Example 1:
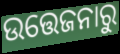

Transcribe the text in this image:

ଉତ୍ତେଜନାରୁ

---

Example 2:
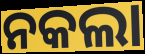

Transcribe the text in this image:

ନକଲା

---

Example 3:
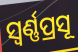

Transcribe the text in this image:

ସ୍ୱର୍ଣ୍ଣପ୍ରସୂ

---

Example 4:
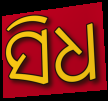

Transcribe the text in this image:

ସିଧ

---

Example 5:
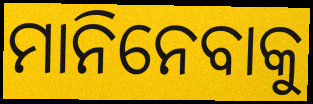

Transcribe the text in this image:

ମାନିନେବାକୁ